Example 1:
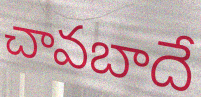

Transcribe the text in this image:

చావబాదే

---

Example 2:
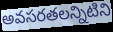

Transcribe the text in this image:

అవసరతలన్నిటిని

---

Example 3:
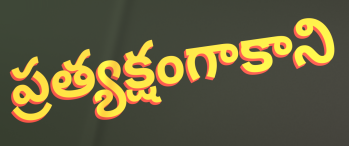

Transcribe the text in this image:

ప్రత్యక్షంగాకాని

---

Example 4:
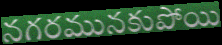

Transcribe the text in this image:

నగరమునకుపోయి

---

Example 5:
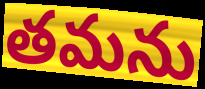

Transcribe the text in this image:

తమను